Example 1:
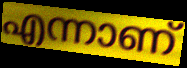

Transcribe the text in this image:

എന്നാണ്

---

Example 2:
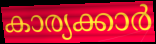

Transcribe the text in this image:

കാര്യക്കാർ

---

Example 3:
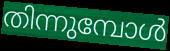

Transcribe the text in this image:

തിന്നുമ്പോൾ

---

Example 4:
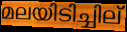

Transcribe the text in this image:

മലയിടിച്ചില്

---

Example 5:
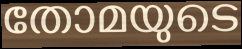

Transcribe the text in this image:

തോമയുടെ